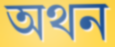
অথন